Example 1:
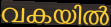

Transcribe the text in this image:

വകയിൽ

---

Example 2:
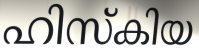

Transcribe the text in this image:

ഹിസ്കിയ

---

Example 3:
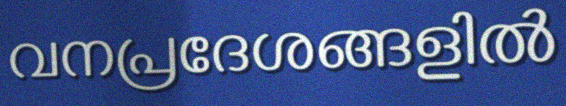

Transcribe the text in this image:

വനപ്രദേശങ്ങളിൽ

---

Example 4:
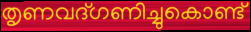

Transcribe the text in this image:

തൃണവദ്ഗണിച്ചുകൊണ്ട്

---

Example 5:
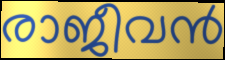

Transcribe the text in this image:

രാജീവൻ